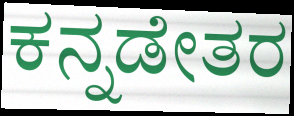
ಕನ್ನಡೇತರ